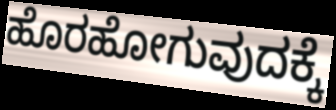
ಹೊರಹೋಗುವುದಕ್ಕೆ